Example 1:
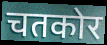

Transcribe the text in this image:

चतकोर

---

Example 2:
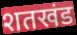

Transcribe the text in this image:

शतखंड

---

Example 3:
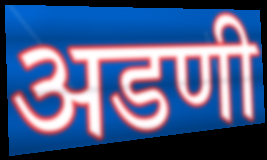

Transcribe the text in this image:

अडणी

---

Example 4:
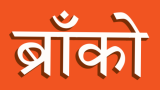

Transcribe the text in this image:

ब्राँको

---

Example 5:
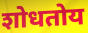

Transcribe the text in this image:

शोधतोय